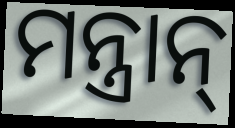
ମନ୍ତ୍ରାନ୍